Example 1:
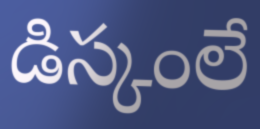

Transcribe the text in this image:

డిస్కంలే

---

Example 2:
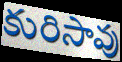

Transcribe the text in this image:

కురిసావు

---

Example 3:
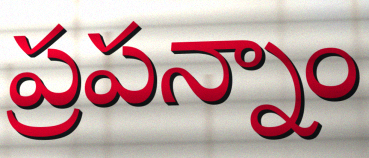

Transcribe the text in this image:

ప్రపన్నాం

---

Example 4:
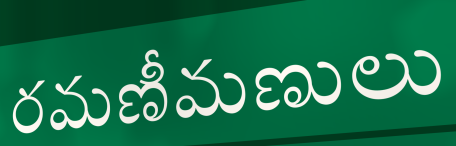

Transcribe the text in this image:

రమణీమణులు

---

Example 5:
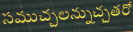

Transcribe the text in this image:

సముచ్చలన్నుచ్చతరో